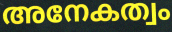
അനേകത്വം